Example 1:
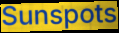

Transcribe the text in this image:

Sunspots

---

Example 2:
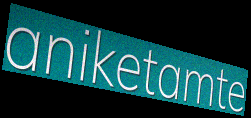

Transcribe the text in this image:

aniketamte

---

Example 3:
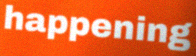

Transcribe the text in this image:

happening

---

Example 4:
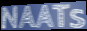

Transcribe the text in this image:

NAATs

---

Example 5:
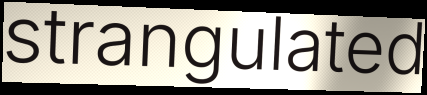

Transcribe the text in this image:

strangulated